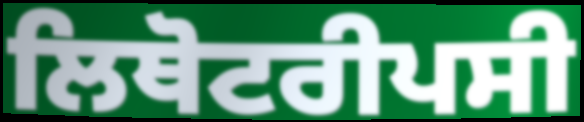
ਲਿਥੋਟਰੀਪਸੀ